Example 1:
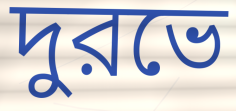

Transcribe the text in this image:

দুরভে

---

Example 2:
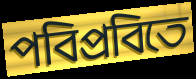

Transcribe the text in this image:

পবিপ্রবিতে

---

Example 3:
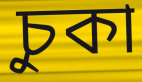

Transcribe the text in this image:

চুকা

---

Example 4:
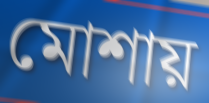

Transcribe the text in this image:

মোশায়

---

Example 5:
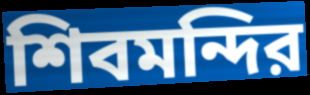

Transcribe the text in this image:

শিবমন্দির